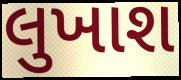
લુખાશ